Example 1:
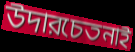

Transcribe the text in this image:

উদারচেতনাই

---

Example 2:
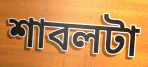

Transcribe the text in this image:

শাবলটা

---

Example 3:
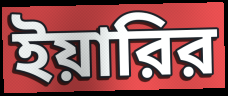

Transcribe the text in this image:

ইয়ারির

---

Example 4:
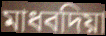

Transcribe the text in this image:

মাধবদিয়া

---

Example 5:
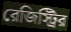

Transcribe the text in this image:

রেজিস্ট্রির